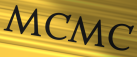
MCMC